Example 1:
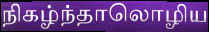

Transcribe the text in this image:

நிகழ்ந்தாலொழிய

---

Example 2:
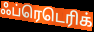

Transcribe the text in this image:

ஃப்ரெடெரிக்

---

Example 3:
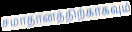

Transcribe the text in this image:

சமாதானத்திற்காகவும்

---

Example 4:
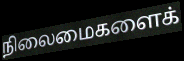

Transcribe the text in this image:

நிலைமைகளைக்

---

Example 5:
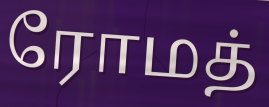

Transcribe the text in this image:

ரோமத்